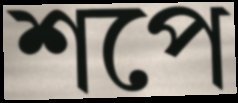
শপে